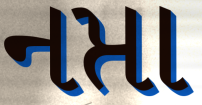
નપ્તા